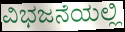
ವಿಭಜನೆಯಲ್ಲಿ